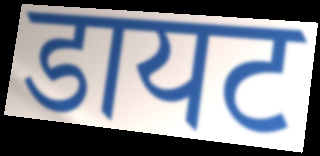
डायट